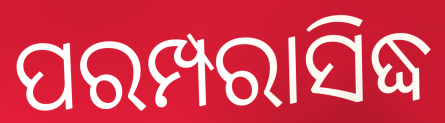
ପରମ୍ପରାସିଦ୍ଧ